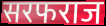
सरफराज